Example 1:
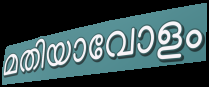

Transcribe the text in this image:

മതിയാവോളം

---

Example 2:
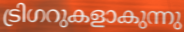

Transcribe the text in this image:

ട്രിഗറുകളാകുന്നു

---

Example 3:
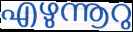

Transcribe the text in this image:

എഴുന്നൂറു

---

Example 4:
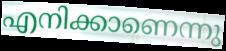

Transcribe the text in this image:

എനിക്കാണെന്നു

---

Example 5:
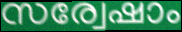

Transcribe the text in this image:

സര്വേഷാം